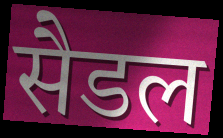
सैडल